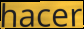
hacer